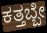
ಕತ್ತಬ್ಬೇ